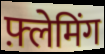
फ़्लेमिंग